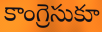
కాంగ్రెసుకూ